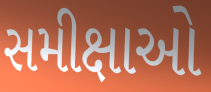
સમીક્ષાઓ